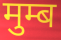
मुम्ब